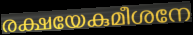
രക്ഷയേകുമീശനേ